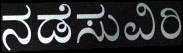
ನಡೆಸುವಿರಿ